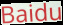
Baidu